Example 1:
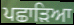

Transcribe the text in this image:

ਪਛਾੜਿਆ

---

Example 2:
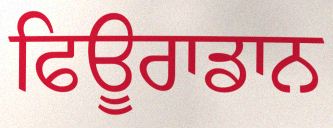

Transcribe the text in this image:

ਫਿਊਰਾਡਾਨ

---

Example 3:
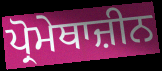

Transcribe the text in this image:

ਪ੍ਰੋਮੇਥਾਜ਼ੀਨ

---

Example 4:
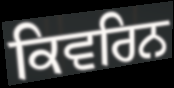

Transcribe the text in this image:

ਕਿਵਰਿਨ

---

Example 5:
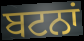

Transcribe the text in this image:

ਬਟਨਾਂ